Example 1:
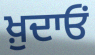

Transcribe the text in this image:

ਖ਼ੁਦਾਓਂ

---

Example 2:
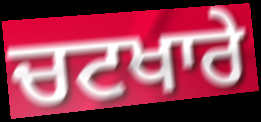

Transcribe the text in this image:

ਚਟਖਾਰੇ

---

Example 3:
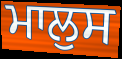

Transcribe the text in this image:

ਮਾਲੁਸ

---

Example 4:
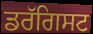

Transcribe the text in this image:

ਡਰੱਗਿਸਟ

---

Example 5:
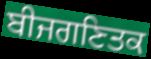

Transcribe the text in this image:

ਬੀਜਗਣਿਤਕ